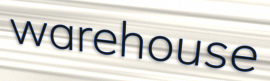
warehouse